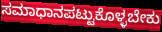
ಸಮಾಧಾನಪಟ್ಟುಕೊಳ್ಳಬೇಕು